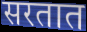
सरतात